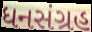
ધનસંગ્રહ